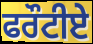
ਫਰੌਟੀਏ